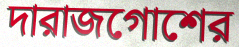
দারাজগোশের